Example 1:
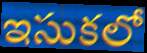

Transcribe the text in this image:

ఇసుకలో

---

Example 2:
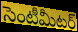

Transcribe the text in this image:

సెంటీమీటర్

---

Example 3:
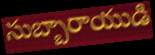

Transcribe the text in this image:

సుబ్బారాయుడి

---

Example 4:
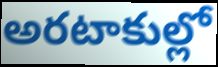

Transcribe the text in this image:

అరటాకుల్లో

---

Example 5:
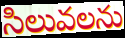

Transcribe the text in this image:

సిలువలను